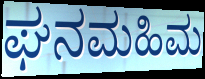
ಘನಮಹಿಮ